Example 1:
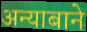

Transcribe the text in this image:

अन्याबाने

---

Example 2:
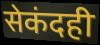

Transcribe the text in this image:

सेकंदही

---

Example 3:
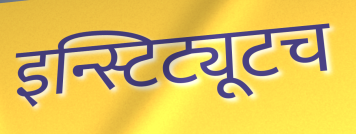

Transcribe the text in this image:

इन्स्टिट्यूटच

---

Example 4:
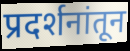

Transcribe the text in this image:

प्रदर्शनांतून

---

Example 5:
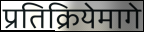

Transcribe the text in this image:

प्रतिक्रियेमागे